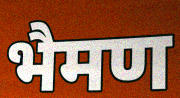
भैमण